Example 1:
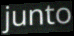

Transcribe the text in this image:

junto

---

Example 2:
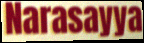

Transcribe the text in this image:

Narasayya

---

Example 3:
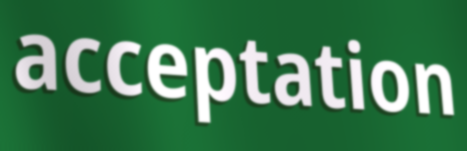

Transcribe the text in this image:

acceptation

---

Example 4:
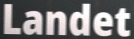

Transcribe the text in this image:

Landet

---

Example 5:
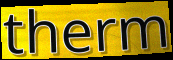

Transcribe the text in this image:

therm